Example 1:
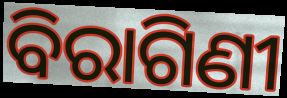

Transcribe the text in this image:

ବିରାଗିଣୀ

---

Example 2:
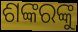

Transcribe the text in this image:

ଶଙ୍କରଙ୍କୁ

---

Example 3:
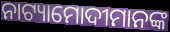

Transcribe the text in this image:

ନାଟ୍ୟାମୋଦୀମାନଙ୍କ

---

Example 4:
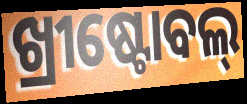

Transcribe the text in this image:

ଖ୍ରୀଷ୍ଟୋବଲ୍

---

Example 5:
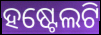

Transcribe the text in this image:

ହଷ୍ଟେଲଟି